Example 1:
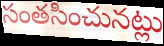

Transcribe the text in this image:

సంతసించునట్లు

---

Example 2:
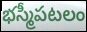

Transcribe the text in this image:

భస్మీపటలం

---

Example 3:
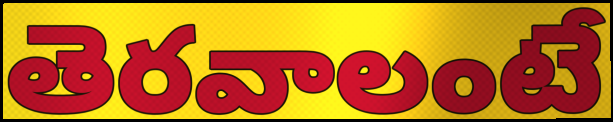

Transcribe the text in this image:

తెరవాలంటే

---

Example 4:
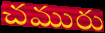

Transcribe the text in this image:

చమురు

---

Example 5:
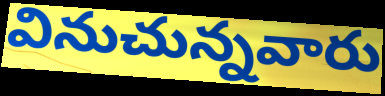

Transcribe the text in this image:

వినుచున్నవారు